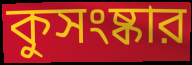
কুসংষ্কার